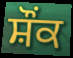
ਸ਼ੌੰਕ